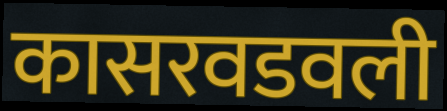
कासरवडवली